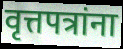
वृत्तपत्रांना